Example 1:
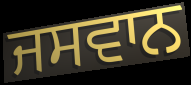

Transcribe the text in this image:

ਜਸਵਾਨ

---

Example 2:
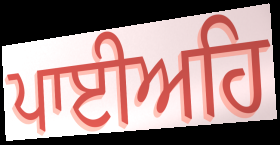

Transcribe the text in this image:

ਪਾਈਅਹਿ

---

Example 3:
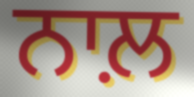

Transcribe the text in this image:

ਨਾਲ਼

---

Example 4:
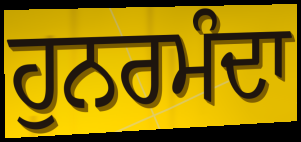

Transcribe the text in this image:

ਹੁਨਰਮੰਦਾ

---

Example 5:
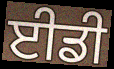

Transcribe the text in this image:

ਈਡੀ